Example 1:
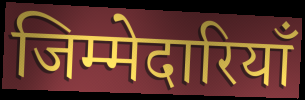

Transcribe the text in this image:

जिम्मेदारियाँ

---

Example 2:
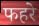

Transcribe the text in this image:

फहरे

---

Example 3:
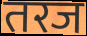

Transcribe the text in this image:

तरज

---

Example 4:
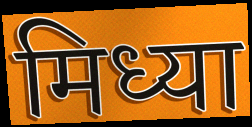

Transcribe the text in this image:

मिध्या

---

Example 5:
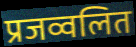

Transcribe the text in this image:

प्रजव्वलित